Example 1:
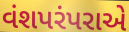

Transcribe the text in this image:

વંશપરંપરાએ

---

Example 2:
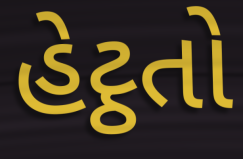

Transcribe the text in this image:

હેટ્ઠતો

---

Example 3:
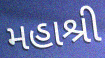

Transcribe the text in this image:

મહાશ્રી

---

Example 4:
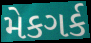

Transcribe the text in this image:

મેકગર્ક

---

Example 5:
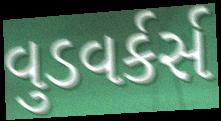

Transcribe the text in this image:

વુડવર્કર્સ